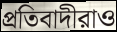
প্রতিবাদীরাও